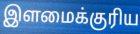
இளமைக்குரிய